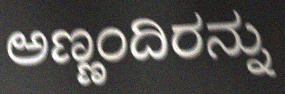
ಅಣ್ಣಂದಿರನ್ನು